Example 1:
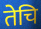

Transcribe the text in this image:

तेचि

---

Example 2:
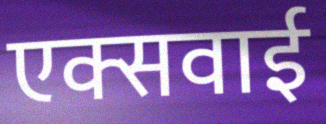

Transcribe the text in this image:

एक्सवाई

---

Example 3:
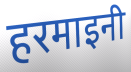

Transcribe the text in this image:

हरमाइनी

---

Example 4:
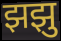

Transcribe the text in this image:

झझु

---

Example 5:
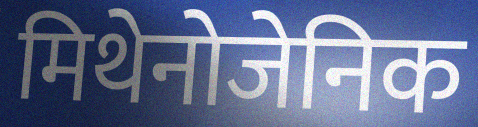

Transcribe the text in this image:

मिथेनोजेनिक